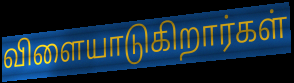
விளையாடுகிறார்கள்